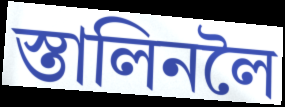
স্তালিনলৈ